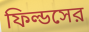
ফিল্ডসের